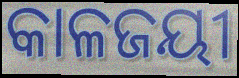
କାଳଜୟୀ